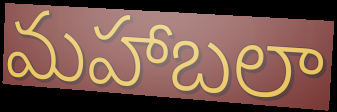
మహాబలా